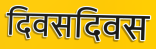
दिवसदिवस